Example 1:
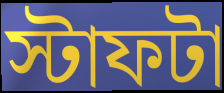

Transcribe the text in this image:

স্টাফটা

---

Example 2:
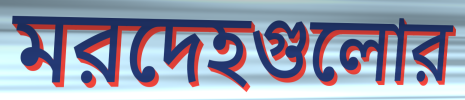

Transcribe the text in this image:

মরদেহগুলোর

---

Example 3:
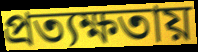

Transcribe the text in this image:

প্রত্যক্ষতায়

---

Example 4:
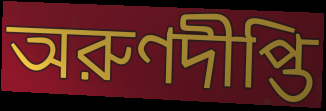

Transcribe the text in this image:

অরুণদীপ্তি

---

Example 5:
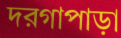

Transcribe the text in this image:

দরগাপাড়া